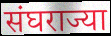
संघराज्या